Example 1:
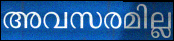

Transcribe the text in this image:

അവസരമില്ല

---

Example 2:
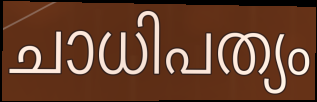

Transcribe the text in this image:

ചാധിപത്യം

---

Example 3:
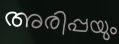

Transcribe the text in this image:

അരിപ്പയും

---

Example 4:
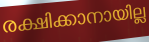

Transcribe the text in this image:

രക്ഷിക്കാനായില്ല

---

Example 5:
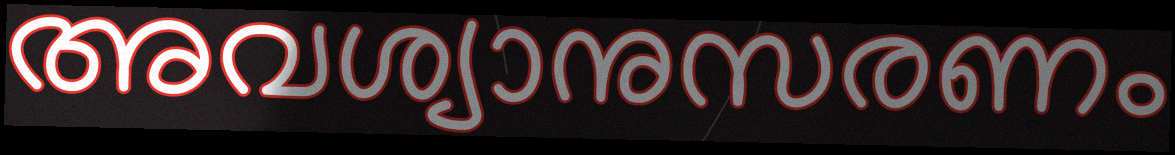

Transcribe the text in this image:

അവശ്യാനുസരണം